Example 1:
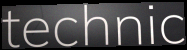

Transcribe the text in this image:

technic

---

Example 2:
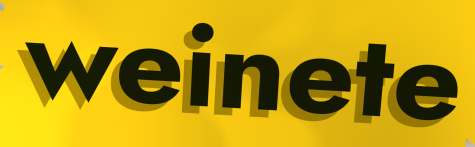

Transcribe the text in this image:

weinete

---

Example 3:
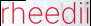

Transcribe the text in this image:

rheedii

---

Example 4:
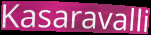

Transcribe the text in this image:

Kasaravalli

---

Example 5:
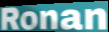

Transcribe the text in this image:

Ronan